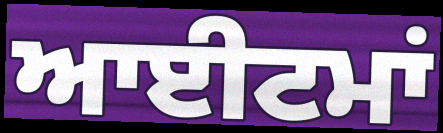
ਆਈਟਮਾਂ